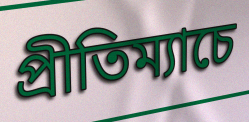
প্রীতিম্যাচে